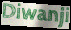
Diwanji